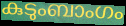
കുടുംബാംഗം